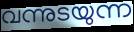
വന്നുടയുന്ന